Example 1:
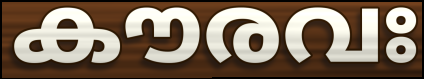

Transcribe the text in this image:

കൗരവഃ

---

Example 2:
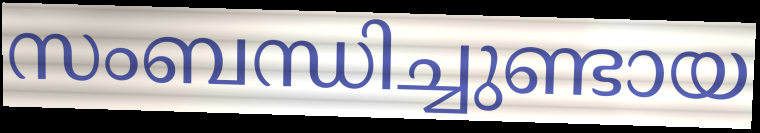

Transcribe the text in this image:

സംബന്ധിച്ചുണ്ടായ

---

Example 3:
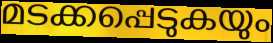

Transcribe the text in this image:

മടക്കപ്പെടുകയും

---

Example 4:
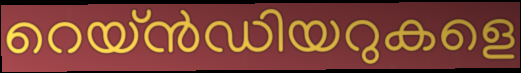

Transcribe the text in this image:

റെയ്ൻഡിയറുകളെ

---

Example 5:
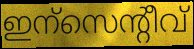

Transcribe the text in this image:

ഇന്സെന്റീവ്